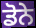
ਡੋਨੇ